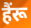
हैंरू